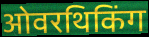
ओवरथिकिंग